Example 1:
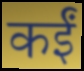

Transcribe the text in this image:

कईं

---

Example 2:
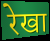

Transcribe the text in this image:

रेखा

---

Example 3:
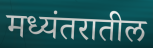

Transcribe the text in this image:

मध्यंतरातील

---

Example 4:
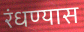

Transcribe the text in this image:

रंधण्यास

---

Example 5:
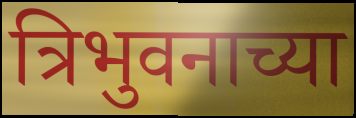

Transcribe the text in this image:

त्रिभुवनाच्या